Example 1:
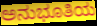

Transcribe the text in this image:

ಅನುಭೂತಿಯ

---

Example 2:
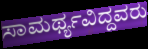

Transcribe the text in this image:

ಸಾಮರ್ಥ್ಯವಿದ್ದವರು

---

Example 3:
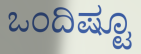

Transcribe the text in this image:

ಒಂದಿಷ್ಟೂ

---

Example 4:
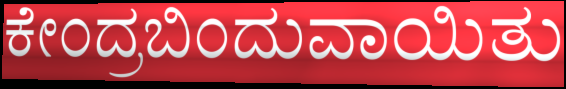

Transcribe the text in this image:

ಕೇಂದ್ರಬಿಂದುವಾಯಿತು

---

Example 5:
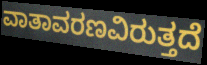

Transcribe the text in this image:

ವಾತಾವರಣವಿರುತ್ತದೆ